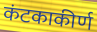
कंटकाकीर्ण